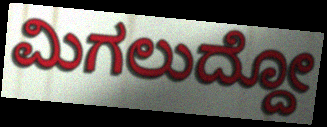
ಮಿಗಲುದ್ದೋ